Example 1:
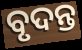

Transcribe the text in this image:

ବୃଦନ୍ତ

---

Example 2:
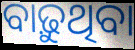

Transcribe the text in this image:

ବାଢ଼ୁଥିବା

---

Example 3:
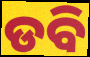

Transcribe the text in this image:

ଡବି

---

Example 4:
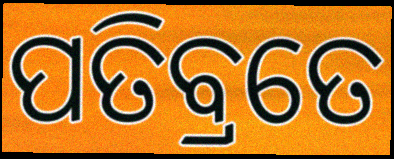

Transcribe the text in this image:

ପତିବ୍ରତେ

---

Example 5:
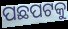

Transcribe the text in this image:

ପଛପଟକୁ